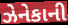
ઝેનેકાની